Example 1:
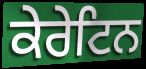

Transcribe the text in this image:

ਕੇਰੇਟਿਨ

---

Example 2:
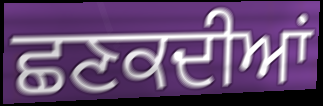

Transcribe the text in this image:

ਛਣਕਦੀਆਂ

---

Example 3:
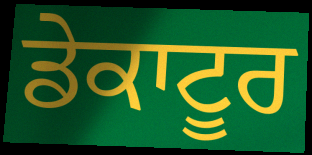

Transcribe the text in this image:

ਡੇਕਾਟੂਰ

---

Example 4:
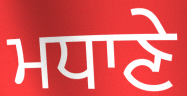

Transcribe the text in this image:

ਮਧਾਣੇ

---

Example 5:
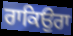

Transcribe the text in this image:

ਰਾਕਿਉਰਾ